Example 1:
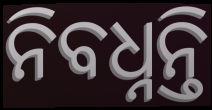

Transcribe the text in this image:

ନିବଧ୍ନନ୍ତି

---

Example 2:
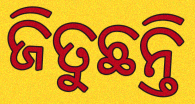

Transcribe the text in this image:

ଜିତୁଛନ୍ତି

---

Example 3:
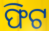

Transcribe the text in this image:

ଫିଟ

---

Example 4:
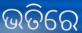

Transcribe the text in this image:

ଭତିରେ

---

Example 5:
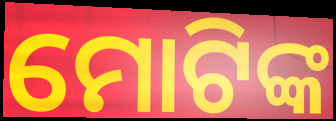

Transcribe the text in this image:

ମୋଟିଙ୍କ